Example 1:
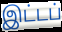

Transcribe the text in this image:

இட்டப்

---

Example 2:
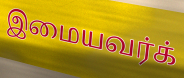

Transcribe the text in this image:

இமையவர்க்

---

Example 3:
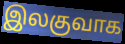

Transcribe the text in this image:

இலகுவாக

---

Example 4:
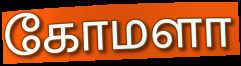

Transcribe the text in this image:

கோமளா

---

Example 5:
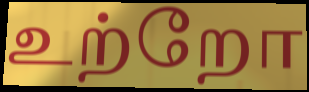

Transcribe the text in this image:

உற்றோ